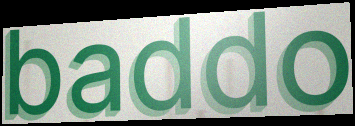
baddo